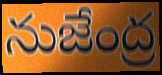
నుజేంద్ర